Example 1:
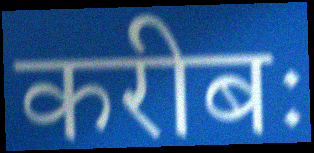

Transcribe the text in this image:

करीबः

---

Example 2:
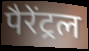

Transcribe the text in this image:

पैरेंट्रल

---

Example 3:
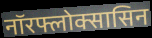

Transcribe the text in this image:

नॉरफ्लोक्सासिन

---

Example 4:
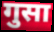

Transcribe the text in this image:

गुसा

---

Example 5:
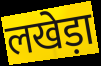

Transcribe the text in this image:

लखेड़ा